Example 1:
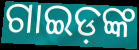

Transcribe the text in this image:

ଗାଇଡ଼ଙ୍କ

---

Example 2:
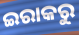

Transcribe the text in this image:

ଇରାକରୁ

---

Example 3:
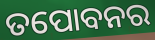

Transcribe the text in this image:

ତପୋବନର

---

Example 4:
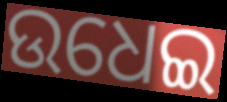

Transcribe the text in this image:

ଉଧେଇ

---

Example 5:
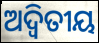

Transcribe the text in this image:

ଅଦ୍ୱିତୀୟ